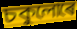
চকুলোৰে